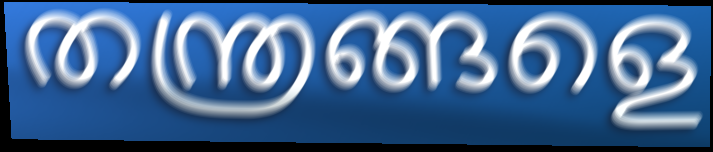
തന്ത്രങ്ങളെ